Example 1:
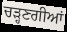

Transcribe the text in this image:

ਚੜ੍ਹਣਗੀਆਂ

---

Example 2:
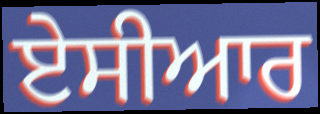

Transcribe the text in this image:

ਏਸੀਆਰ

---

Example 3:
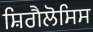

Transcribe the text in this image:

ਸ਼ਿਗੈਲੋਸਿਸ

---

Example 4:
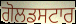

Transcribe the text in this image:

ਗੋਲਡਸਟਾਰ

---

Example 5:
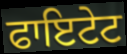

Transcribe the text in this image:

ਫਾਇਟੇਟ